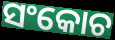
ସଂକୋଚ